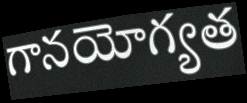
గానయోగ్యత